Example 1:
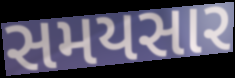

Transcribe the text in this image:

સમયસાર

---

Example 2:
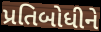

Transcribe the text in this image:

પ્રતિબોધીને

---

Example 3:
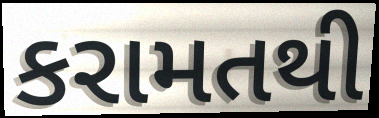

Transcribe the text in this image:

કરામતથી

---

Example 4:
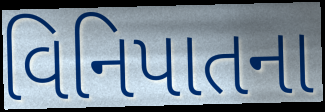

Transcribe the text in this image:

વિનિપાતના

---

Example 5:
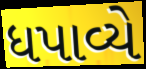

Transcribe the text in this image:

ધપાવ્યે